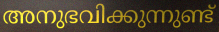
അനുഭവിക്കുന്നുണ്ട്